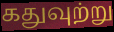
கதுவுற்று